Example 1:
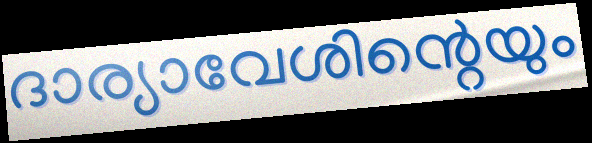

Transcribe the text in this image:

ദാര്യാവേശിന്റെയും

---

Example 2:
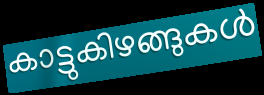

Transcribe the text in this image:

കാട്ടുകിഴങ്ങുകൾ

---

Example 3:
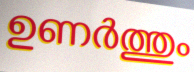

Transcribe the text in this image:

ഉണർത്തും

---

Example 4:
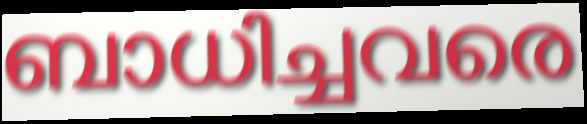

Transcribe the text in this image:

ബാധിച്ചവരെ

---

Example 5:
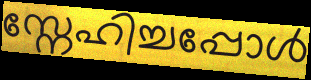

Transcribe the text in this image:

സ്നേഹിച്ചപ്പോൾ